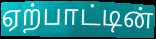
ஏற்பாட்டின்